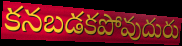
కనబడకపోవుదురు